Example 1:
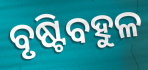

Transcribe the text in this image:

ବୃଷ୍ଟିବହୁଳ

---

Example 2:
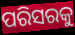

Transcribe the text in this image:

ପରିସରକୁ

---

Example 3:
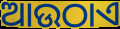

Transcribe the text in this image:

ଆଉଠାଏ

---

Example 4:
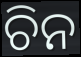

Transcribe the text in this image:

ଚିନ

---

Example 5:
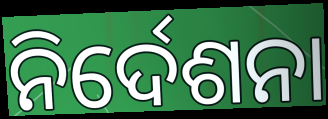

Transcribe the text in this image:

ନିର୍ଦେଶନା